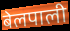
बेलपाली